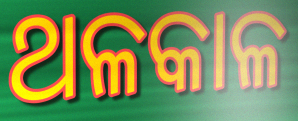
ଥଳକାଳ